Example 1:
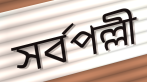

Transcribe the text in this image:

সর্বপল্লী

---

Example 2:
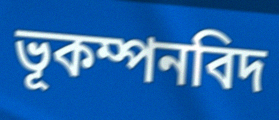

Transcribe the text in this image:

ভূকম্পনবিদ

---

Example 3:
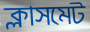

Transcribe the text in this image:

ক্লাসমেট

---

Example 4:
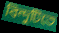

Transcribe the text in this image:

বিন্দুটিতে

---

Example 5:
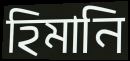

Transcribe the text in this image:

হিমানি